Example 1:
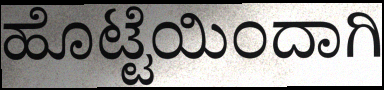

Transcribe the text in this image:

ಹೊಟ್ಟೆಯಿಂದಾಗಿ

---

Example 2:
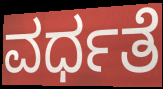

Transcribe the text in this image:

ವರ್ಧತೆ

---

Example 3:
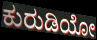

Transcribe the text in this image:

ಕುರುಡಿಯೋ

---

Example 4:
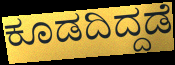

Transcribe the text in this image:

ಕೂಡದಿದ್ದಡೆ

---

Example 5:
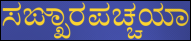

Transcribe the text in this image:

ಸಙ್ಖಾರಪಚ್ಚಯಾ